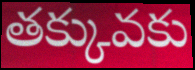
తక్కువకు